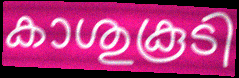
കാശുകൂടി